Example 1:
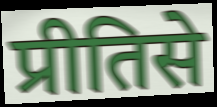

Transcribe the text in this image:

प्रीतिसे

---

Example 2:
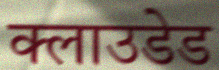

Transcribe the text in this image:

क्लाउडेड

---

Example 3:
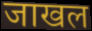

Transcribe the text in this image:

जाखल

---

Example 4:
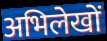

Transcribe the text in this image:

अभिलेखों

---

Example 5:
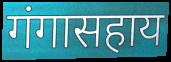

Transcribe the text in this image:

गंगासहाय